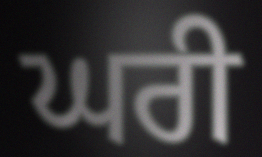
ਘਰੀ